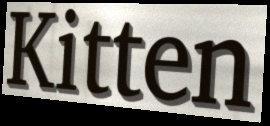
Kitten